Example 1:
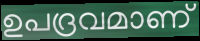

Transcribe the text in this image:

ഉപദ്രവമാണ്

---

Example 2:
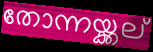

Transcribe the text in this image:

തോന്നയ്ക്കല്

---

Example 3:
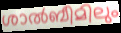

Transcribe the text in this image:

ശാൽബീമിലും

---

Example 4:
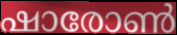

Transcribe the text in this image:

ഷാരോൺ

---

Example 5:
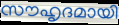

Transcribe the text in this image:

സൗഹൃദമായി